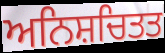
ਅਨਿਸ਼ਚਿਤਤ